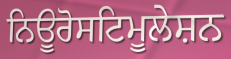
ਨਿਊਰੋਸਟਿਮੂਲੇਸ਼ਨ